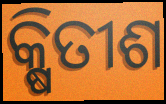
କ୍ଷିତୀଶ